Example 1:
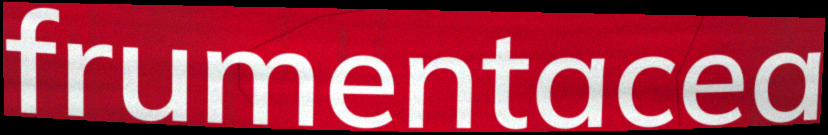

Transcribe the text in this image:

frumentacea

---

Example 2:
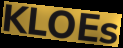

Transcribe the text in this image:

KLOEs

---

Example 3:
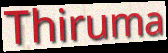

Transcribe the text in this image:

Thiruma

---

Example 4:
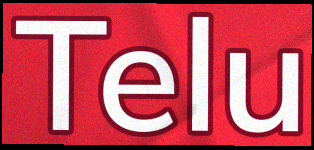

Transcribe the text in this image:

Telu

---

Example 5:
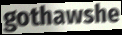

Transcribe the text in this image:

gothawshe